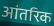
आंतरिक